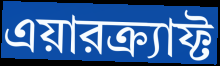
এয়ারক্র্যাফ্ট